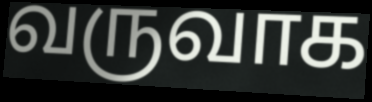
வருவாக